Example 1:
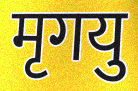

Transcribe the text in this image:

मृगयु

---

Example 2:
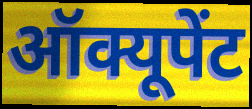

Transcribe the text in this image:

ऑक्यूपेंट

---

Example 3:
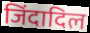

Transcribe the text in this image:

जिंदादिल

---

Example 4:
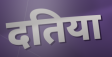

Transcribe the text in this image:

दतिया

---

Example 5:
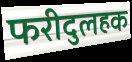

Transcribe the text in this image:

फरीदुलहक